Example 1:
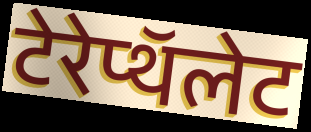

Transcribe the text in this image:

टेरेप्थॅलेट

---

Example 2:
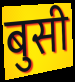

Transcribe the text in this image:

बुसी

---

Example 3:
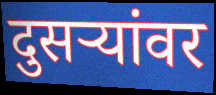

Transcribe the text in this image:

दुसर्‍यांवर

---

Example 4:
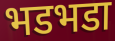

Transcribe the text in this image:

भडभडा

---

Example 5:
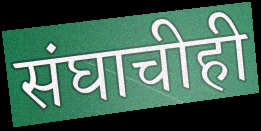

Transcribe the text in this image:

संघाचीही